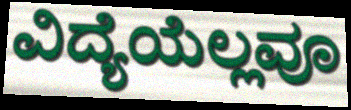
ವಿದ್ಯೆಯೆಲ್ಲವೂ